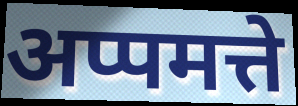
अप्पमत्ते